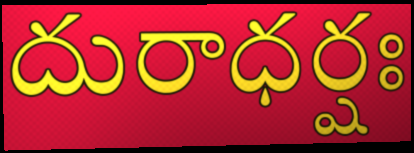
దురాధర్షః